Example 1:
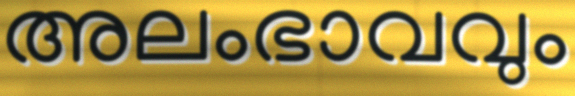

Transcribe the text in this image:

അലംഭാവവും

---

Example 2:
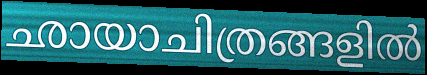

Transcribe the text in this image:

ഛായാചിത്രങ്ങളിൽ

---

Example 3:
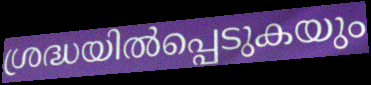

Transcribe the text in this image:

ശ്രദ്ധയിൽപ്പെടുകയും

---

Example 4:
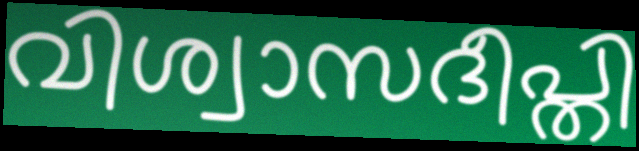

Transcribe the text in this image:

വിശ്വാസദീപ്തി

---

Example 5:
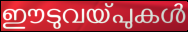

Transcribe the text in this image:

ഈടുവയ്പുകൾ